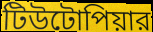
টিউটোপিয়ার